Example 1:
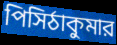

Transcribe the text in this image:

পিসিঠাকুমার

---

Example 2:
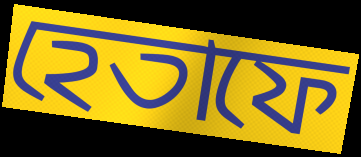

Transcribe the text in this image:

হেতাফে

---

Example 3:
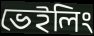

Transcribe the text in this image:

ভেইলিং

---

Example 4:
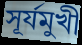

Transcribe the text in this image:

সূর্যমুখী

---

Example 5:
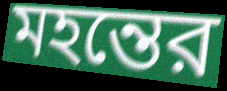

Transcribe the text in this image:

মহন্তের